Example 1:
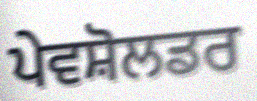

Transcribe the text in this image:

ਪੇਵਸ਼ੋਲਡਰ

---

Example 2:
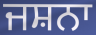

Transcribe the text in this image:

ਜਸ਼ਨਾ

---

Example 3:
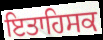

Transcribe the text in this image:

ਇਤਾਹਿਸਕ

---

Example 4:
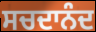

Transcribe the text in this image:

ਸਚਦਾਨੰਦ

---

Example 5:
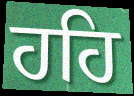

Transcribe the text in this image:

ਹਹਿ